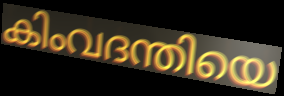
കിംവദന്തിയെ